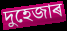
দুহেজাৰ